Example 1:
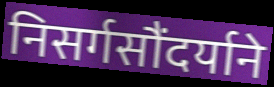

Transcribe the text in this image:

निसर्गसौंदर्याने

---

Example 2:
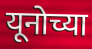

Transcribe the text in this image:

यूनोच्या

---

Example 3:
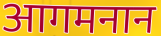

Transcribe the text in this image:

आगमनान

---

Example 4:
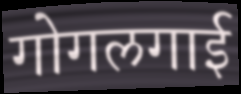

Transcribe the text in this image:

गोगलगाई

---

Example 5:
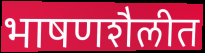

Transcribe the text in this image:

भाषणशैलीत